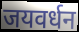
जयवर्धन